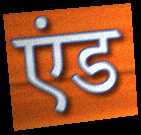
एंड